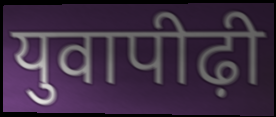
युवापीढ़ी